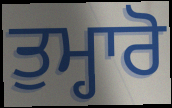
ਤੁਮ੍ਹ੍ਹਾਰੋ